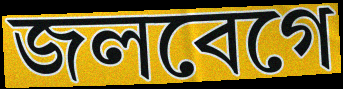
জলবেগে